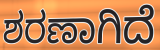
ಶರಣಾಗಿದೆ